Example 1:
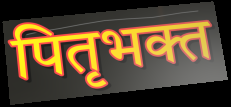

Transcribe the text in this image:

पितृभक्त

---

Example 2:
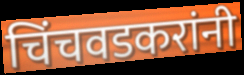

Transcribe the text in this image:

चिंचवडकरांनी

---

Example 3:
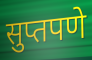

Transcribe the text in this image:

सुप्तपणे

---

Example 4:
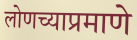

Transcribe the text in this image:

लोणच्याप्रमाणे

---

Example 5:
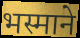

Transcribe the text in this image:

भस्माने